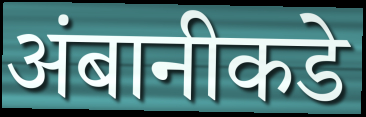
अंबानीकडे